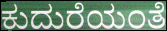
ಕುದುರೆಯಂತೆ